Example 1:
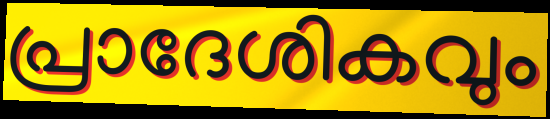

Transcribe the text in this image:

പ്രാദേശികവും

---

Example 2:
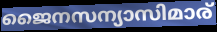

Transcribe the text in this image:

ജൈനസന്യാസിമാര്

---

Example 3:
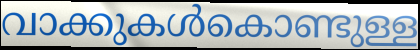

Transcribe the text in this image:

വാക്കുകൾകൊണ്ടുള്ള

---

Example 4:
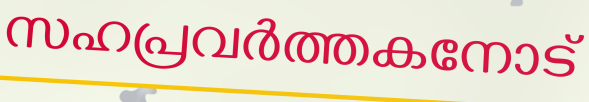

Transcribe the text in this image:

സഹപ്രവർത്തകനോട്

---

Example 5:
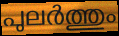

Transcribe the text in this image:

പുലർത്തും